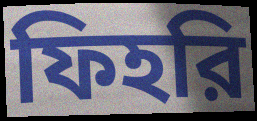
ফিহরি